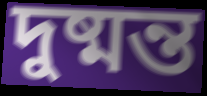
দুষ্মন্ত